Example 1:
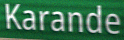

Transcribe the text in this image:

Karande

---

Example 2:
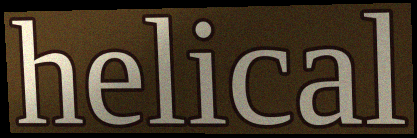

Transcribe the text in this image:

helical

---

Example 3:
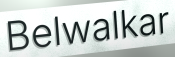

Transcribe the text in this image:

Belwalkar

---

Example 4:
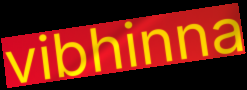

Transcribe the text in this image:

vibhinna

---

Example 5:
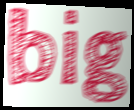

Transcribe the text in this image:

big